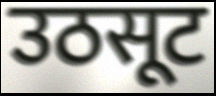
उठसूट